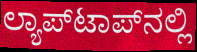
ಲ್ಯಾಪ್‌ಟಾಪ್‌ನಲ್ಲಿ